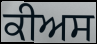
ਕੀਅਸ